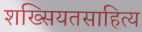
शख्सियतसाहित्य